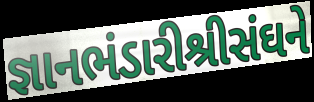
જ્ઞાનભંડારીશ્રીસંઘને